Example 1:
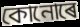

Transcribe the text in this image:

কোনোৰে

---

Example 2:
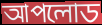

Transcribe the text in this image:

আপলোড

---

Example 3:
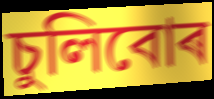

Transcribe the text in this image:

চুলিবোৰ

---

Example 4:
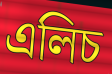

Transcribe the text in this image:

এলিচ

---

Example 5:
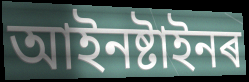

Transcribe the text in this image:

আইনষ্টাইনৰ